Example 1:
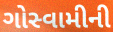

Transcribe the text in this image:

ગોસ્વામીની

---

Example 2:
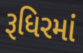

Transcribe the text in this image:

રૂધિરમાં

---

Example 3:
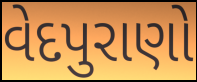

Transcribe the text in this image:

વેદપુરાણો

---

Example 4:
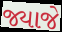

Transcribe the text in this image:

જ્યાજે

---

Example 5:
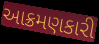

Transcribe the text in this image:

આક્રમણકારી